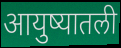
आयुष्यातली